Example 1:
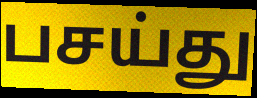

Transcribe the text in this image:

பசய்து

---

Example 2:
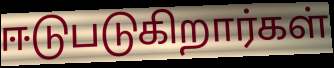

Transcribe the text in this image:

ஈடுபடுகிறார்கள்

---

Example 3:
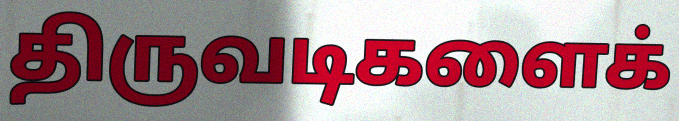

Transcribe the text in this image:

திருவடிகளைக்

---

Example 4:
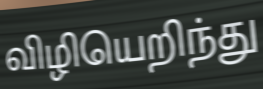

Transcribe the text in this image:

விழியெறிந்து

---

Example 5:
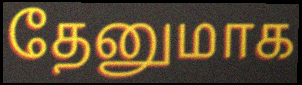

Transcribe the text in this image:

தேனுமாக